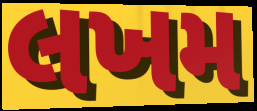
લખમ